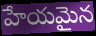
హేయమైన